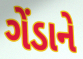
ગેંડાને